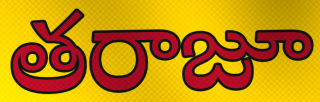
తరాజూ